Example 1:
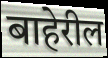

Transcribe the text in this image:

बाहेरील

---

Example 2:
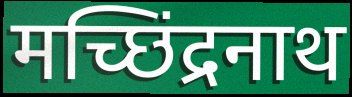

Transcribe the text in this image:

मच्छिंद्रनाथ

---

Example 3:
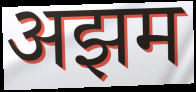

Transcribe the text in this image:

अझम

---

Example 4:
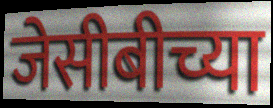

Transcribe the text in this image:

जेसीबीच्या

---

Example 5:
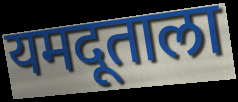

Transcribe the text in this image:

यमदूताला